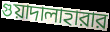
গুয়াদালাহারার